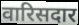
वारिसदार